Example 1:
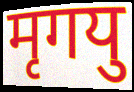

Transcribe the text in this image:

मृगयु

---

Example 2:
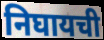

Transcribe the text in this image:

निघायची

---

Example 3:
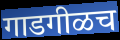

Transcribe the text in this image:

गाडगीळच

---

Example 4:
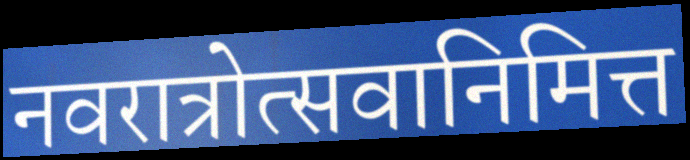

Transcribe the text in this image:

नवरात्रोत्सवानिमित्त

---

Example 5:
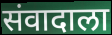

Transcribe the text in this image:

संवादाला